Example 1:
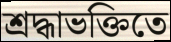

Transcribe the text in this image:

শ্রদ্ধাভক্তিতে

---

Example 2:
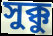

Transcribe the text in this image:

সুক্কু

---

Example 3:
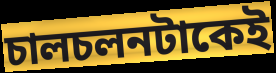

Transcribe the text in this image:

চালচলনটাকেই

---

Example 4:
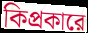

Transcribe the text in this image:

কিপ্রকারে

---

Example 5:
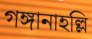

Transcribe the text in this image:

গঙ্গানাহল্লি